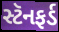
સ્ટૅનફર્ડ